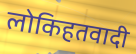
लोकिहतवादी